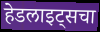
हेडलाइट्सचा